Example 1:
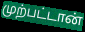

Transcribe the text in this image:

முற்பட்டான்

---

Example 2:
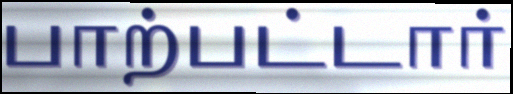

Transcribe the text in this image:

பாற்பட்டார்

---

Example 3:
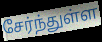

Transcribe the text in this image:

சேர்ந்துள்ள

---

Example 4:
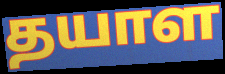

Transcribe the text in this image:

தயாள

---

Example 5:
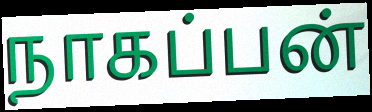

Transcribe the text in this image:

நாகப்பன்